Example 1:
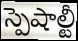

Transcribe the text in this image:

స్పెషాల్టీ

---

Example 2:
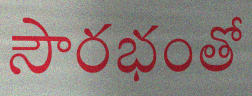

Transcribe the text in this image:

సౌరభంతో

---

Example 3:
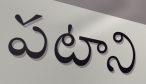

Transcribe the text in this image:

పటాని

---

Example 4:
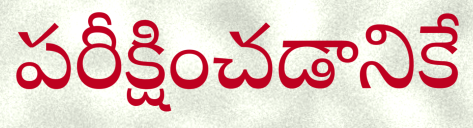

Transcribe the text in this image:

పరీక్షించడానికే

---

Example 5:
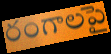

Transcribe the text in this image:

రంగాలపై